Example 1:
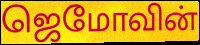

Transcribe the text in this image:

ஜெமோவின்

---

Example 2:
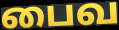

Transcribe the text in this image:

பைவ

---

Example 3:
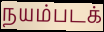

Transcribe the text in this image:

நயம்படக்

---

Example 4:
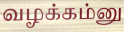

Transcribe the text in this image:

வழக்கம்னு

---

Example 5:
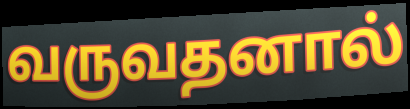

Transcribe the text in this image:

வருவதனால்